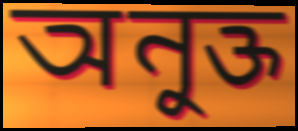
অনুক্ত